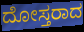
ದೋಸ್ತರಾದ